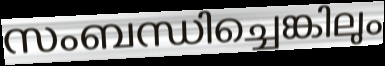
സംബന്ധിച്ചെങ്കിലും